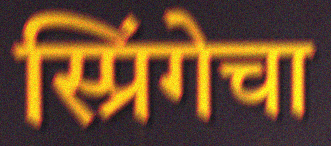
स्प्रिंगेचा